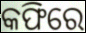
କଫିରେ